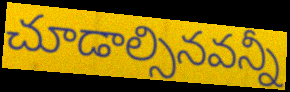
చూడాల్సినవన్నీ